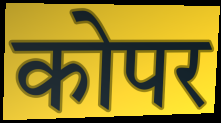
कोपर